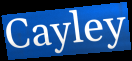
Cayley